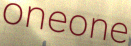
oneone